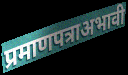
प्रमाणपत्राअभावी